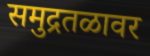
समुद्रतळावर